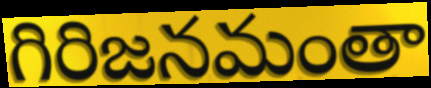
గిరిజనమంతా